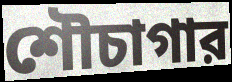
শৌচাগার